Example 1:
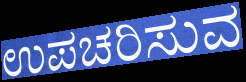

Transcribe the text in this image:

ಉಪಚರಿಸುವ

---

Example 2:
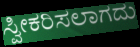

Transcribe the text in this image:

ಸ್ವೀಕರಿಸಲಾಗದು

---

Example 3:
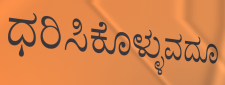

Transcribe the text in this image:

ಧರಿಸಿಕೊಳ್ಳುವದೂ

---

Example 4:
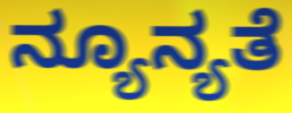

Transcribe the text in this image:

ನ್ಯೂನ್ಯತೆ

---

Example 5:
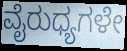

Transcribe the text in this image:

ವೈರುಧ್ಯಗಳೇ